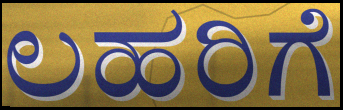
ಲಹರಿಗೆ